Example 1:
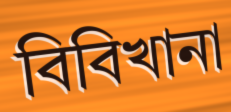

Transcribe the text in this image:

বিবিখানা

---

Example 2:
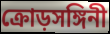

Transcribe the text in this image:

ক্রোড়সঙ্গিনী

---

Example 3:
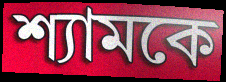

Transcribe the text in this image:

শ্যামকে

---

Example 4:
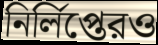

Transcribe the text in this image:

নির্লিপ্তেরও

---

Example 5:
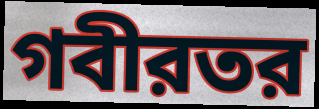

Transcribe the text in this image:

গবীরতর